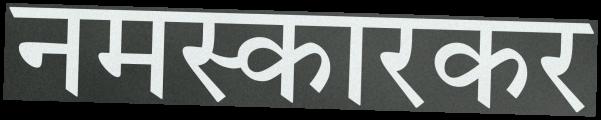
नमस्कारकर